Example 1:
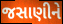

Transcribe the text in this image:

જસાણીને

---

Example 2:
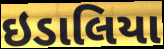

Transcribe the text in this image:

ઇડાલિયા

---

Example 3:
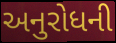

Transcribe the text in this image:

અનુરોધની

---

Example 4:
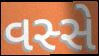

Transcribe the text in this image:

વસ્સે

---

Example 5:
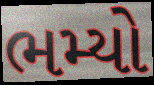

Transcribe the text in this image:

ભમ્યો